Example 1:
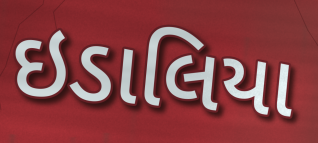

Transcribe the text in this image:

ઇડાલિયા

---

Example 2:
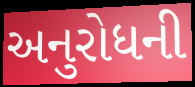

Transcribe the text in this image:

અનુરોધની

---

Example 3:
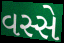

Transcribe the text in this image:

વસ્સે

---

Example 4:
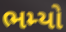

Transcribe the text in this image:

ભમ્યો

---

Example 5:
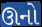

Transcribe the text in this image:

ઊનો